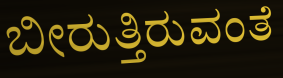
ಬೀರುತ್ತಿರುವಂತೆ